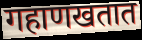
गहाणखतात